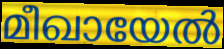
മീഖായേൽ